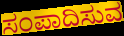
ಸಂಪಾದಿಸುವ